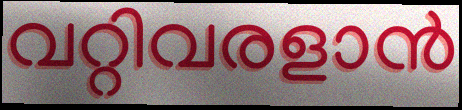
വറ്റിവരളാൻ